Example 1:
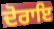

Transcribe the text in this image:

ਦੋਰਾਇ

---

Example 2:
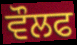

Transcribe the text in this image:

ਵੌਲਫ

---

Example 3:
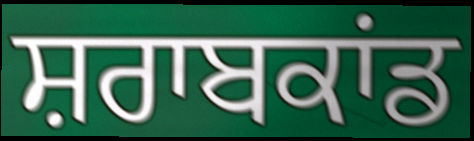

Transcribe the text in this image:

ਸ਼ਰਾਬਕਾਂਡ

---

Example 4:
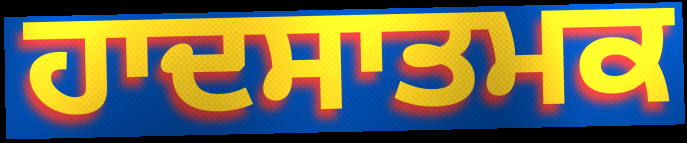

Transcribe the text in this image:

ਹਾਦਸਾਤਮਕ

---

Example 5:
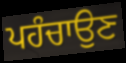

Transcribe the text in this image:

ਪਹੰਚਾਉਣ